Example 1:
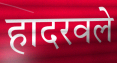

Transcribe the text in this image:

हादरवले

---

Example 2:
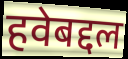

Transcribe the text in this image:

हवेबद्दल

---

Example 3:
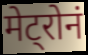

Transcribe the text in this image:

मेट्रोनं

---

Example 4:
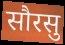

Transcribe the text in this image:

सौरसु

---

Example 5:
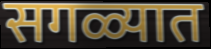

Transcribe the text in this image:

सगळ्यात